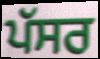
ਪੱਸਰ